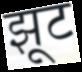
झूट